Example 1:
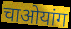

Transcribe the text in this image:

चाओयांग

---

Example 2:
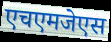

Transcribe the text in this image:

एचएमजेएस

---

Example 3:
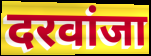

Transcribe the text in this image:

दरवांजा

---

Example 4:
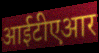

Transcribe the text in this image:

आईटीएआर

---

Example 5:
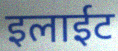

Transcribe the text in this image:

इलाईट